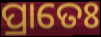
ପ୍ରାତେଃ